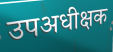
उपअधीक्षक